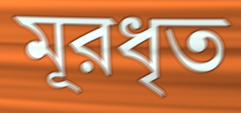
মূরধৃত